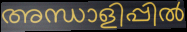
അന്ധാളിപ്പിൽ